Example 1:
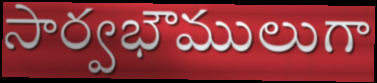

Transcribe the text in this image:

సార్వభౌములుగా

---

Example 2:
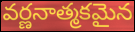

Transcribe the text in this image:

వర్ణనాత్మకమైన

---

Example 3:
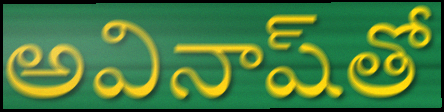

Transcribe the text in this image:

అవినాష్‌తో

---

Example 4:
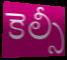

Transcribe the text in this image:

కెల్సీ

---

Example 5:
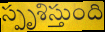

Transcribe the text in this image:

స్పృశిస్తుంది